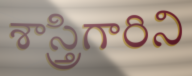
శాస్త్రిగారిని